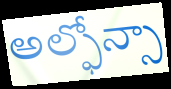
అల్ఫోన్సా